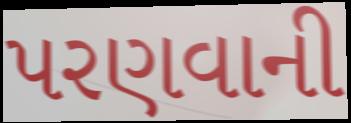
પરણવાની